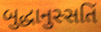
બુદ્ધાનુસ્સતિં